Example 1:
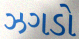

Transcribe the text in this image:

ઝગડો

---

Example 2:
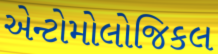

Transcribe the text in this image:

એન્ટોમોલોજિકલ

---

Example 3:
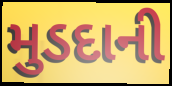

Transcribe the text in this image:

મુડદાની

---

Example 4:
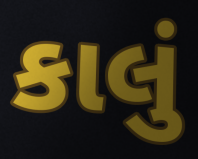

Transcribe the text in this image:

કાલું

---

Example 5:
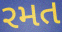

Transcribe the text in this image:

રમત